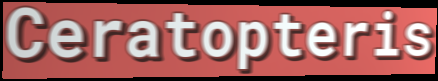
Ceratopteris